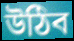
উঠিব